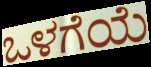
ಒಳಗೆಯೆ